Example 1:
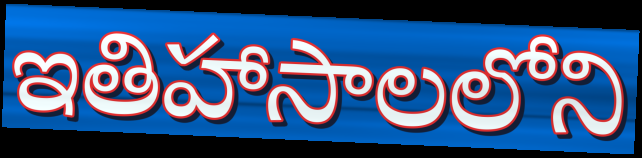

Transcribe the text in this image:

ఇతిహాసాలలోని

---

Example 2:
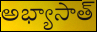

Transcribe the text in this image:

అభ్యాసాత్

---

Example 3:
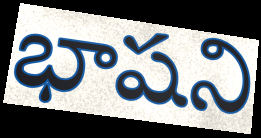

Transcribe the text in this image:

భాషని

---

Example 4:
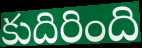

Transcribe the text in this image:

కుదిరింది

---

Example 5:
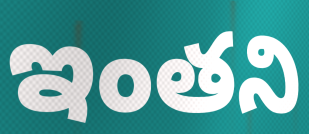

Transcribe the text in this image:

ఇంతని